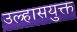
उल्हासयुक्त